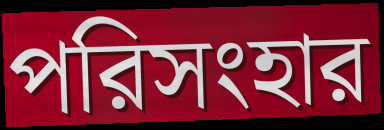
পরিসংহার